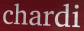
chardi